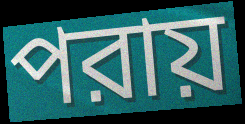
পরায়